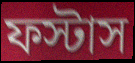
ফস্টাস